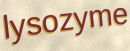
lysozyme